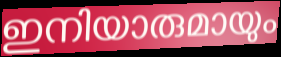
ഇനിയാരുമായും